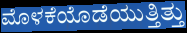
ಮೊಳಕೆಯೊಡೆಯುತ್ತಿತ್ತು